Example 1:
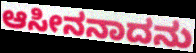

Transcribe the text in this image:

ಆಸೀನನಾದನು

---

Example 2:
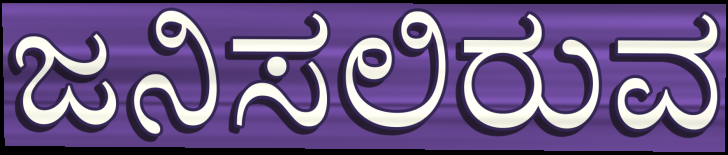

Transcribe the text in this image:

ಜನಿಸಲಿರುವ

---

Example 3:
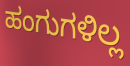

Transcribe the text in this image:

ಹಂಗುಗಳಿಲ್ಲ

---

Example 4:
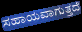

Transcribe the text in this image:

ಸಹಾಯವಾಗುತ್ತದೆ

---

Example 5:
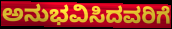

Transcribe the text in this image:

ಅನುಭವಿಸಿದವರಿಗೆ